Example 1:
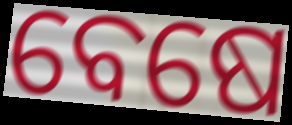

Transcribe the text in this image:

ବେଷେ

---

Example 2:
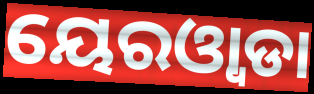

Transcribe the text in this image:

ୟେରଓ୍ୱାଡା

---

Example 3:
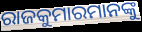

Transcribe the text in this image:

ରାଜକୁମାରମାନଙ୍କୁ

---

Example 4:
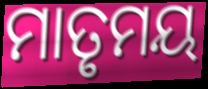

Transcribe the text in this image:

ମାତୃମୟ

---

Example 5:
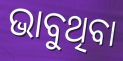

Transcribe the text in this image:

ଭାବୁଥିବା